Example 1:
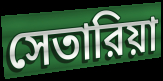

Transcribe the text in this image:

সেতারিয়া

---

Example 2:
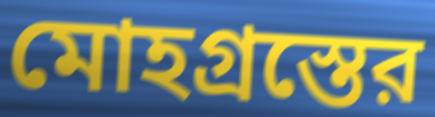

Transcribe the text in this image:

মোহগ্রস্তের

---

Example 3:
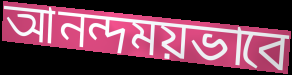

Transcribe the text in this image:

আনন্দময়ভাবে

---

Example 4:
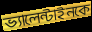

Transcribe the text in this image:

ভ্যালেন্টাইনকে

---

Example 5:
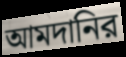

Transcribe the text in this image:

আমদানির